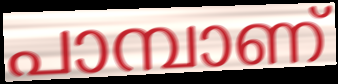
പാമ്പാണ്